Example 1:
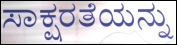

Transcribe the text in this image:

ಸಾಕ್ಷರತೆಯನ್ನು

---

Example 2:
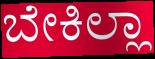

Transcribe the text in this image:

ಬೇಕಿಲ್ಲಾ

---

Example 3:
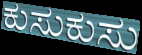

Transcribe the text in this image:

ಕುಸುಕುಸು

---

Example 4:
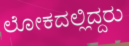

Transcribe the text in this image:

ಲೋಕದಲ್ಲಿದ್ದರು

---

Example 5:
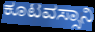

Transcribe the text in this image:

ಕೂಟವಸ್ಸಾನಿ